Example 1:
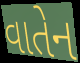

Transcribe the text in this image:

વાતેન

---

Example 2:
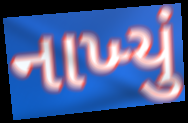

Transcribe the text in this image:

નાખ્‍યું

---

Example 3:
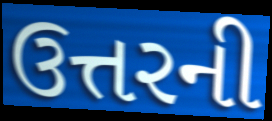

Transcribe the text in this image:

ઉત્તરની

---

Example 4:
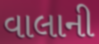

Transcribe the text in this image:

વાલાની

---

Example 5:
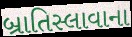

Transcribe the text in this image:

બ્રાતિસ્લાવાના